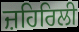
ਜ਼ਹਿਰਿਲੀ